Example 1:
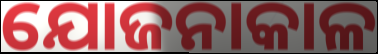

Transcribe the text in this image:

ଯୋଜନାକାଳ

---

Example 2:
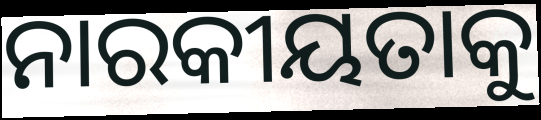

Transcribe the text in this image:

ନାରକୀୟତାକୁ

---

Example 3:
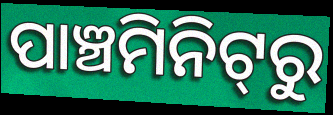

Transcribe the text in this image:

ପାଞ୍ଚମିନିଟ୍‌ରୁ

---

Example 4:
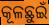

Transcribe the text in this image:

କୂଳଛୁଇଁ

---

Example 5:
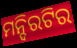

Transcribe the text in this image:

ମନ୍ଦିରଟିର